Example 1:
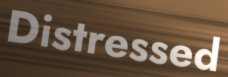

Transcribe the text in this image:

Distressed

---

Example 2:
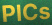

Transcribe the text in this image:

PICs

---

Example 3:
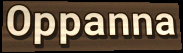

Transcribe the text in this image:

Oppanna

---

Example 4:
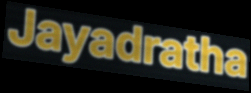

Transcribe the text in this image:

Jayadratha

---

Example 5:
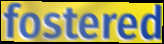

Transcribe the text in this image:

fostered